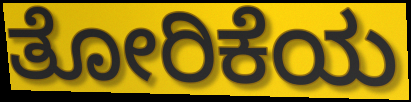
ತೋರಿಕೆಯ